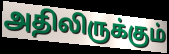
அதிலிருக்கும்